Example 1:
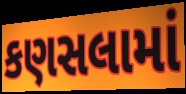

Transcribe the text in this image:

કણસલામાં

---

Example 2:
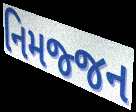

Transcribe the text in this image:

નિમજ્જન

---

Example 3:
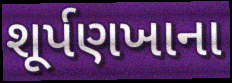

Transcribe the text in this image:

શૂર્પણખાના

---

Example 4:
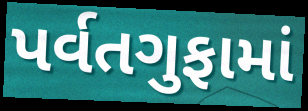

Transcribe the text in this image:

પર્વતગુફામાં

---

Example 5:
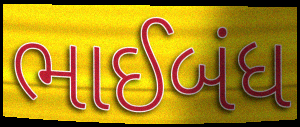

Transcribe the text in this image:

ભાઈબંધ